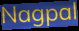
Nagpal